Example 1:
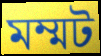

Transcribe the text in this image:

মম্মট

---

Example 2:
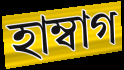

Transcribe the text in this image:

হাম্বাগ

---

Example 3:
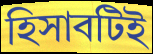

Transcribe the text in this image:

হিসাবটিই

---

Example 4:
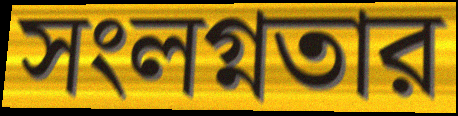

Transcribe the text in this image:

সংলগ্নতার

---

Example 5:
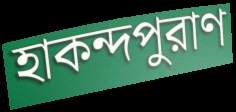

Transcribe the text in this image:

হাকন্দপুরাণ